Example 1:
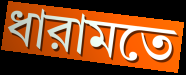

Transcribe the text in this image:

ধারামতে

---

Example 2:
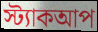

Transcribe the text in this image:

স্ট্যাকআপ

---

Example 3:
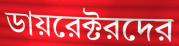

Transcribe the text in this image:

ডায়রেক্টরদের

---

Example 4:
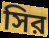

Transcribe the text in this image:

সির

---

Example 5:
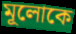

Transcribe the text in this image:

মূলোকে